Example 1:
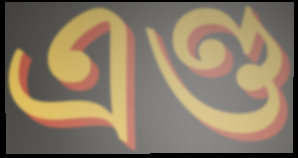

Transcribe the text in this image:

এণ্ড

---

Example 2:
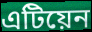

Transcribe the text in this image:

এটিয়েন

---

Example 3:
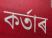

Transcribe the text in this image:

কৰ্তাৰ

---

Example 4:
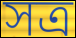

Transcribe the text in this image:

সত্ৰ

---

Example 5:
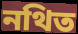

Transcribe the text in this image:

নথিত